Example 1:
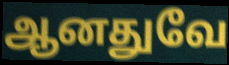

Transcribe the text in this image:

ஆனதுவே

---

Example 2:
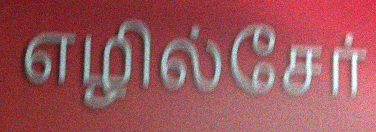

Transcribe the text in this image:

எழில்சேர்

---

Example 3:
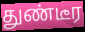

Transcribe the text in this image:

துண்டீர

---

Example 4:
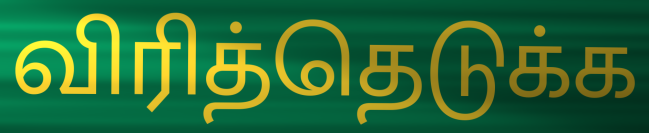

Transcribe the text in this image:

விரித்தெடுக்க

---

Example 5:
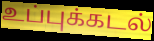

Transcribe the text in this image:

உப்புக்கடல்